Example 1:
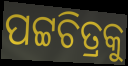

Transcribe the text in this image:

ପଟ୍ଟଚିତ୍ରକୁ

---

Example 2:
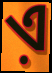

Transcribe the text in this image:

ଏ଼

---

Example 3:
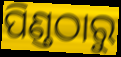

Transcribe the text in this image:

ପିଣ୍ଡଠାରୁ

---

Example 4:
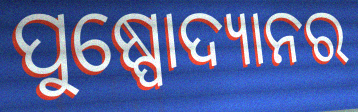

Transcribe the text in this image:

ପୁଷ୍ପୋଦ୍ୟାନର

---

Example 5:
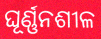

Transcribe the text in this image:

ଘୂର୍ଣ୍ଣନଶୀଳ